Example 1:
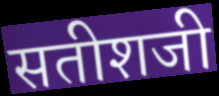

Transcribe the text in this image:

सतीशजी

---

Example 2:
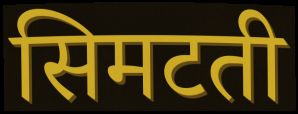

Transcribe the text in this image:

सिमटती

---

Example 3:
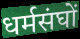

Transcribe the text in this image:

धर्मसंघों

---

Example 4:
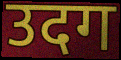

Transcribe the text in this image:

उदग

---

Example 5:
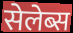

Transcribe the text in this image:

सेलेब्‍स